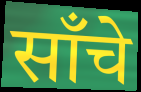
साँचे